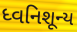
ધ્વનિશૂન્ય